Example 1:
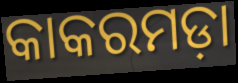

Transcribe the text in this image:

କାକରମଡ଼ା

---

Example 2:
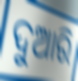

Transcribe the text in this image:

ଦୁଆରି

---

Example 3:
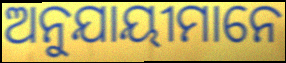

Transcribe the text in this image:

ଅନୁଯାୟୀମାନେ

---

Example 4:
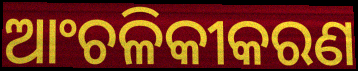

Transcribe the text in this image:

ଆଂଚଳିକୀକରଣ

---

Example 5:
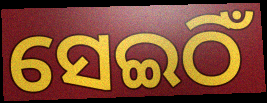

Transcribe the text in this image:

ସେଇଠିଁ